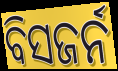
ବିସଜର୍ନ